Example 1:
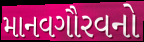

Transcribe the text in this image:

માનવગૌરવનો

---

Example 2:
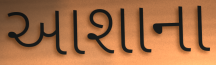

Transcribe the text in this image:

આશાના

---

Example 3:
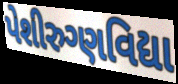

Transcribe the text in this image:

પેશીરુગ્ણવિદ્યા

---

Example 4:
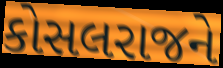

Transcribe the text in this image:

કોસલરાજને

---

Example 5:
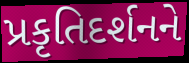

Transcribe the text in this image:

પ્રકૃતિદર્શનને